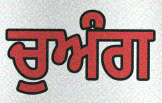
ਚੁਅੰਗ